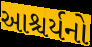
આશ્ચર્યનો